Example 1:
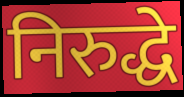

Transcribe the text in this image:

निरुद्धे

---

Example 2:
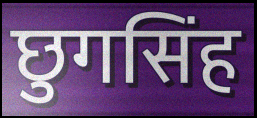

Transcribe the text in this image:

छुगसिंह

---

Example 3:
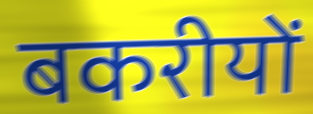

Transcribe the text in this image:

बकरीयों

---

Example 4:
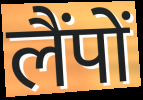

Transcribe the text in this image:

लैंपों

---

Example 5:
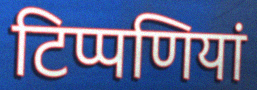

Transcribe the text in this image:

टिप्पणियां